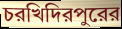
চরখিদিরপুরের